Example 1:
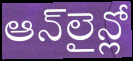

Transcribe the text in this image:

ఆన్‌లైన్లో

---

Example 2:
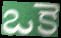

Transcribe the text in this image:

ఒకె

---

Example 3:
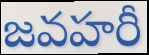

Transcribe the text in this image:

జవహరీ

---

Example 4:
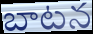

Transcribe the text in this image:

బాటన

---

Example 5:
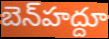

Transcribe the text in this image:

బెన్‍హద్దూ